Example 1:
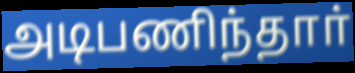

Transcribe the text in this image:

அடிபணிந்தார்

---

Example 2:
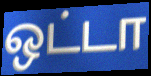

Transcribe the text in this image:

ஒட்டா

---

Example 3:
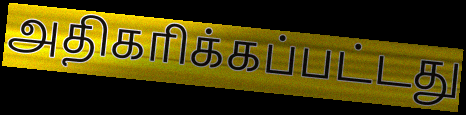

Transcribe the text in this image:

அதிகரிக்கப்பட்டது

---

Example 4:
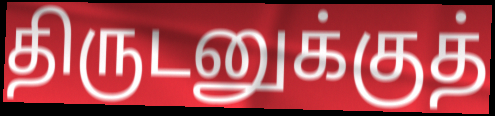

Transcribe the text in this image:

திருடனுக்குத்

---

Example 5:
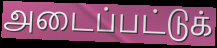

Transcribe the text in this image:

அடைப்பட்டுக்